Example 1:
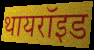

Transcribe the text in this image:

थायरॉइड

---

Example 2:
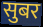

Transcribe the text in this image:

सुबर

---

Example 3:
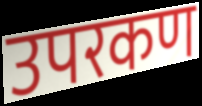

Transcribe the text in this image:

उपरकण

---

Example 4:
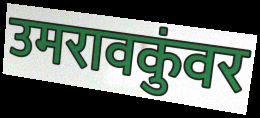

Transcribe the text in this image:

उमरावकुंवर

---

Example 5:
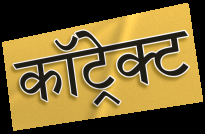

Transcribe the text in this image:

कॉट्रेक्ट